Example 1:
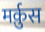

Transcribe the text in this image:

मर्क़ुस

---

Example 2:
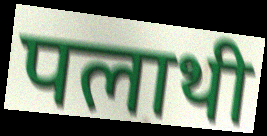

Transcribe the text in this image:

पलाथी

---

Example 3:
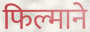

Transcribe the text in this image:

फिल्‍माने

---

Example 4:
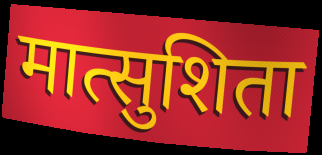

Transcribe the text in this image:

मात्सुशिता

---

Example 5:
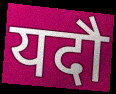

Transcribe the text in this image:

यदौ